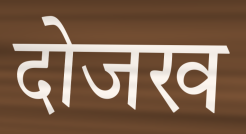
दोजख